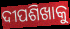
ଦୀପଶିଖାକୁ